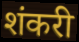
शंकरी